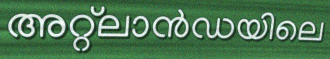
അറ്റ്ലാൻഡയിലെ